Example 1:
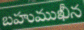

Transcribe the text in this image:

బహుముఖీన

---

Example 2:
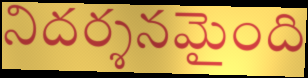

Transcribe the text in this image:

నిదర్శనమైంది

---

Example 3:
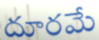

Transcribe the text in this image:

దూరమే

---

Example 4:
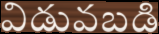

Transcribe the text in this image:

విడువబడి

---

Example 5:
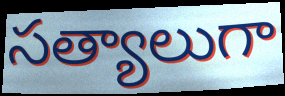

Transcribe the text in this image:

సత్యాలుగా